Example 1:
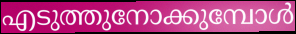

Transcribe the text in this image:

എടുത്തുനോക്കുമ്പോൾ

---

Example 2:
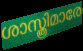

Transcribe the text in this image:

ശാസ്ത്രിമാരേ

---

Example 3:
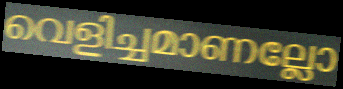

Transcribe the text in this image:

വെളിച്ചമാണല്ലോ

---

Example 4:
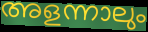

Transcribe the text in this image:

അളന്നാലും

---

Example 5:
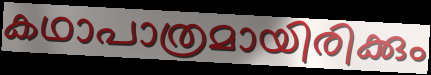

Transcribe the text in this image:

കഥാപാത്രമായിരിക്കും